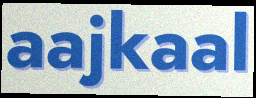
aajkaal